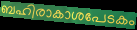
ബഹിരാകാശപേടകം